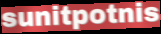
sunitpotnis